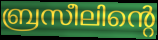
ബ്രസീലിന്റെ